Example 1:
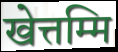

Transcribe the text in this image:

खेत्तम्मि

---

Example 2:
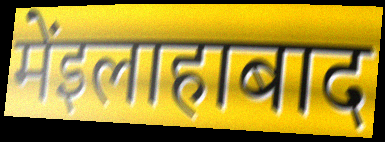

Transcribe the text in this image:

मेंइलाहाबाद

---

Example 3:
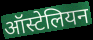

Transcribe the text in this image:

ऑस्टेलियन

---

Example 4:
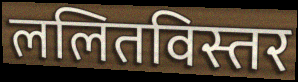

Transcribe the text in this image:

ललितविस्तर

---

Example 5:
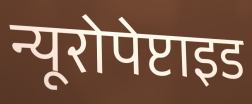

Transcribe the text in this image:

न्यूरोपेप्टाइड